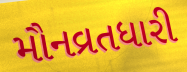
મૌનવ્રતધારી